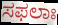
ಸಫಲಾಃ